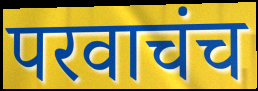
परवाचंच